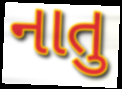
નાતુ